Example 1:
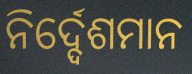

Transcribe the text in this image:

ନିର୍ଦ୍ଦେଶମାନ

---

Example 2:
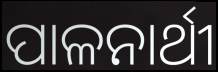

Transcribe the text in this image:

ପାଳନାର୍ଥୀ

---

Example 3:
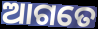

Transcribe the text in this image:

ଆଗତେ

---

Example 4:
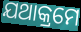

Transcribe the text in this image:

ଯଥାକ୍ରମେ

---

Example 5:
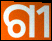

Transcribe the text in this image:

ଗୀ